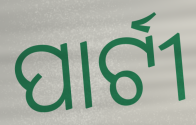
ପାର୍ଟୀ